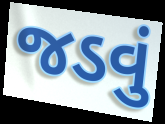
જડવું